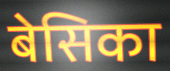
बेसिका